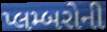
પ્લમ્બરોની